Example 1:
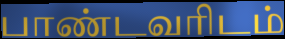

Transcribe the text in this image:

பாண்டவரிடம்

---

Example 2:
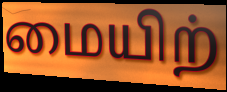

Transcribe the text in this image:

மையிற்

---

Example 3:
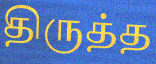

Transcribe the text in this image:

திருத்த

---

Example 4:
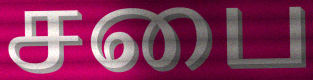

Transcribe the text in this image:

சபை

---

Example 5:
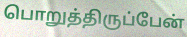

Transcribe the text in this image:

பொறுத்திருப்பேன்